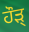
ਹੌੜ੍